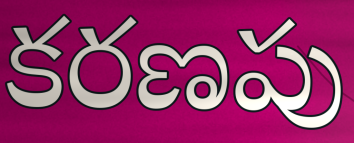
కరణపు